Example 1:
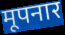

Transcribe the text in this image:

मूपनार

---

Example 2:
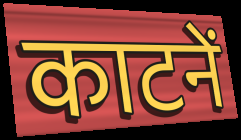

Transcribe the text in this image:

काटनें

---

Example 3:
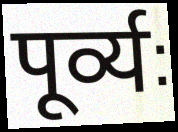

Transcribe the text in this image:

पूर्व्यः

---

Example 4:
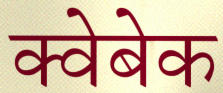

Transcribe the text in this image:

क्वेबेक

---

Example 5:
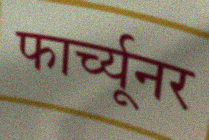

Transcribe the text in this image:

फार्च्यूनर